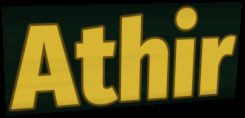
Athir